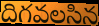
దిగవలసిన